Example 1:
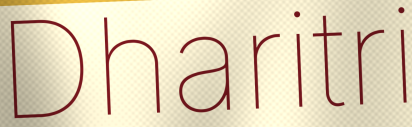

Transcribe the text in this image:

Dharitri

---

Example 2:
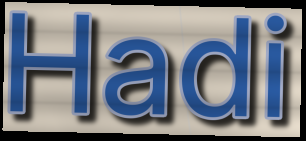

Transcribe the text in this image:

Hadi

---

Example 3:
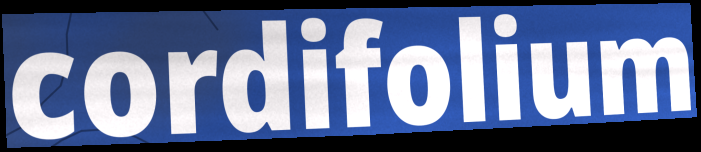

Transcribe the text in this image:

cordifolium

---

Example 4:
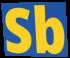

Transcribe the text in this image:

Sb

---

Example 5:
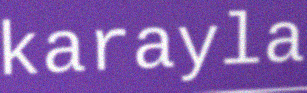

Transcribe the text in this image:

karayla